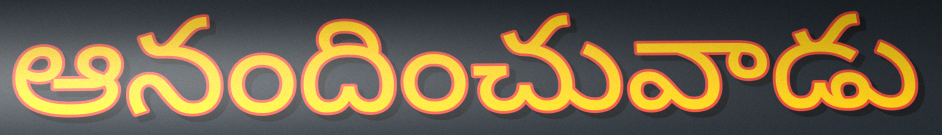
ఆనందించువాడు